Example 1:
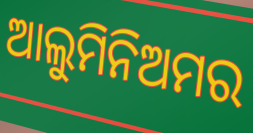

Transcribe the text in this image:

ଆଲୁମିନିଅମର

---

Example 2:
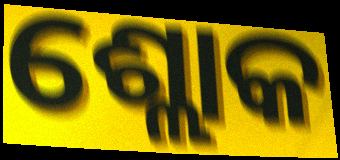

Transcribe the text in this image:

ଶ୍ଲୋକ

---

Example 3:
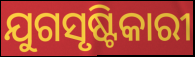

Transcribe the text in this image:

ଯୁଗସୃଷ୍ଟିକାରୀ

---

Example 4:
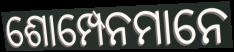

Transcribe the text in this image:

ଶୋମ୍ପେନମାନେ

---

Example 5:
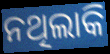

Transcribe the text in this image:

ନଥିଲାକି